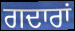
ਗਦਾਰਾਂ